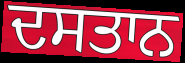
ਦਸਤਾਨ